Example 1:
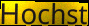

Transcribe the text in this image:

Hochst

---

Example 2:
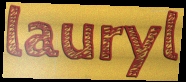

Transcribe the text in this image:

lauryl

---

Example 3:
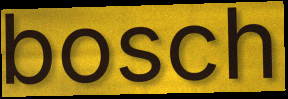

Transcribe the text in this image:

bosch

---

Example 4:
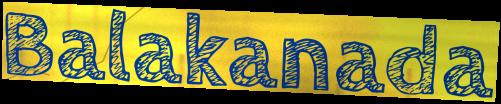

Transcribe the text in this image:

Balakanada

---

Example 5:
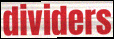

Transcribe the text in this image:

dividers